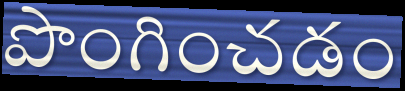
పొంగించడం